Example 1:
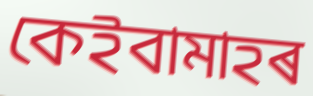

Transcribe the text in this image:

কেইবামাহৰ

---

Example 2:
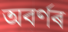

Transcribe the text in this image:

অবৰ্ণৰ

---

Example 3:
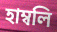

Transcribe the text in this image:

হাম্বলি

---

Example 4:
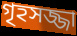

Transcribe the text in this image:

গৃহসজ্জা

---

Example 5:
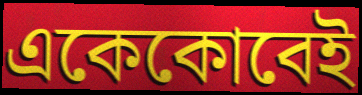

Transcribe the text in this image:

একেকোবেই